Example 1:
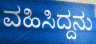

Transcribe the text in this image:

ವಹಿಸಿದ್ದನು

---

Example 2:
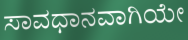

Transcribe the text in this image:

ಸಾವಧಾನವಾಗಿಯೇ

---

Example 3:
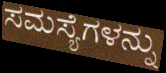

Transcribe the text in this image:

ಸಮಸ್ಯೆಗಳನ್ನು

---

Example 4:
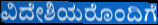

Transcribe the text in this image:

ವಿದೇಶಿಯರೊಂದಿಗೆ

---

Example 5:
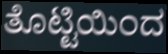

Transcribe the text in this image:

ತೊಟ್ಟಿಯಿಂದ